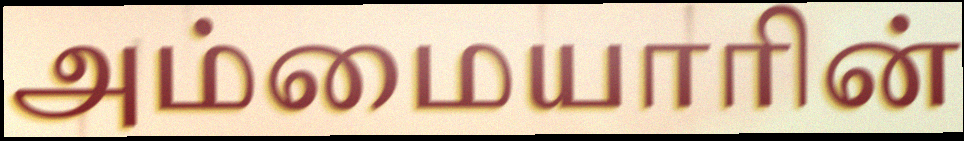
அம்மையாரின்